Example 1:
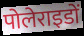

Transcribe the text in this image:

पोलेराइडों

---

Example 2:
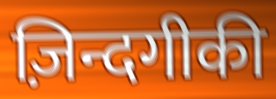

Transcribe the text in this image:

ज़िन्दगीकी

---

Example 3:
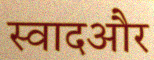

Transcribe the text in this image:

स्वादऔर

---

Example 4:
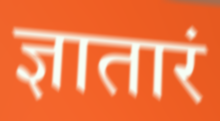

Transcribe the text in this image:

ज्ञातारं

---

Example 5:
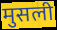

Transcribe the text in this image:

मुसली